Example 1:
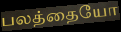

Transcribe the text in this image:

பலத்தையோ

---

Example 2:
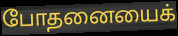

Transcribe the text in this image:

போதனையைக்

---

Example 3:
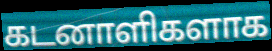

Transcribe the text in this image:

கடனாளிகளாக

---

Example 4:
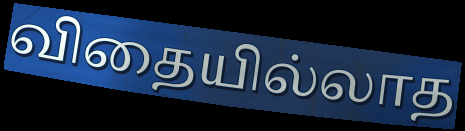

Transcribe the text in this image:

விதையில்லாத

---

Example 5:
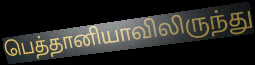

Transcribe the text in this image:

பெத்தானியாவிலிருந்து